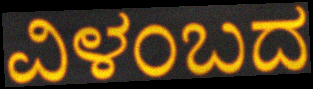
ವಿಳಂಬದ